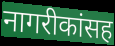
नागरीकांसह